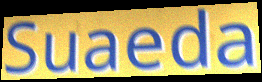
Suaeda